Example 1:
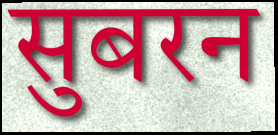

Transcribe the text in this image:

सुबरन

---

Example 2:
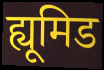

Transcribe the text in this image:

ह्यूमिड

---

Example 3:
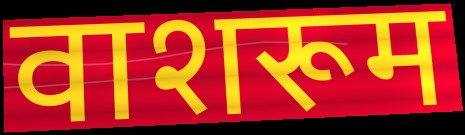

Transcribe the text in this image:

वाशरूम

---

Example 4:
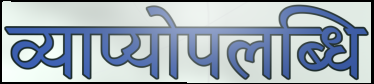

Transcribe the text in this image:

व्याप्योपलब्धि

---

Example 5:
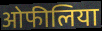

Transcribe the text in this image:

ओफीलिया